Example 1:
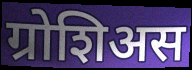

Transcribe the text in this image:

ग्रोशिअस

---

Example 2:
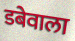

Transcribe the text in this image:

डबेवाला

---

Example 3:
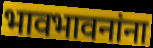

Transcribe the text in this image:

भावभावनांना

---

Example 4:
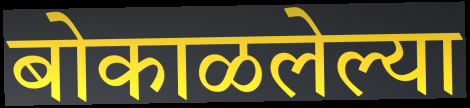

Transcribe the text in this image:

बोकाळलेल्या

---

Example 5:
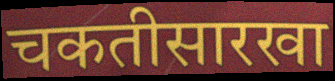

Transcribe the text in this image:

चकतीसारखा